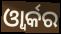
ଓ୍ବାର୍କର